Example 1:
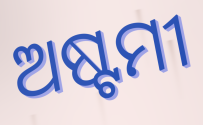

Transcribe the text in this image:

ଅଷ୍ଟମୀ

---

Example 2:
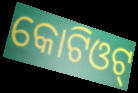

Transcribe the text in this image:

କୋଟିଓଟ୍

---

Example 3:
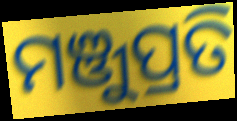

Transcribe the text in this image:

ମଞ୍ଜୁପ୍ରତି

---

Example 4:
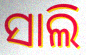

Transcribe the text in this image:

ସାଲି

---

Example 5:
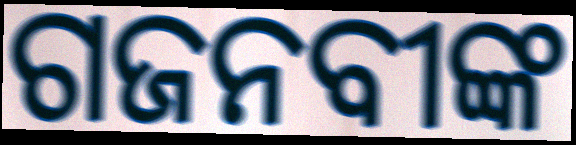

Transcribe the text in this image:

ଗଜନବୀଙ୍କ